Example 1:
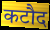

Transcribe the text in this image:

कटौद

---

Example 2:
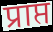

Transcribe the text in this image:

प्राप्त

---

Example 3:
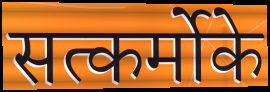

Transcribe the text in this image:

सत्कर्मोके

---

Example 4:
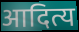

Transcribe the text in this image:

आदित्य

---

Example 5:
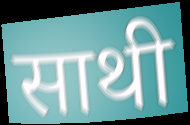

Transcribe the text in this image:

साथी